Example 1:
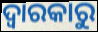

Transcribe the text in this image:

ଦ୍ଵାରକାରୁ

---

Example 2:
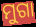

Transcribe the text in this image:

ମୁଗା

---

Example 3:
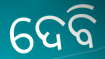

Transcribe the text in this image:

ଦେବି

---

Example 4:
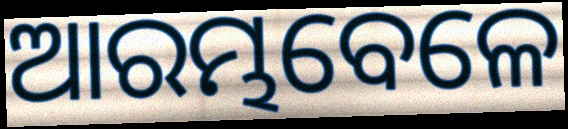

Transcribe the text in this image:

ଆରମ୍ଭବେଳେ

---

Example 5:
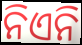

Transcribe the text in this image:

ନିଏନି